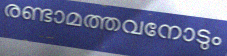
രണ്ടാമത്തവനോടും